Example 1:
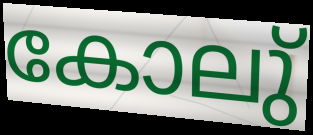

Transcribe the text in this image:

കോലു്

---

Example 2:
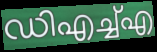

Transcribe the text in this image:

ഡിഎച്ച്എ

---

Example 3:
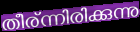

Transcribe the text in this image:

തീര്ന്നിരിക്കുന്നു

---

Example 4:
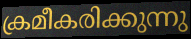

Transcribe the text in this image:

ക്രമീകരിക്കുന്നു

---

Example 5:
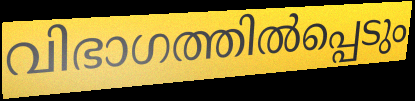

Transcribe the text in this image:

വിഭാഗത്തിൽപ്പെടും